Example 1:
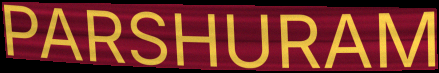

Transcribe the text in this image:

PARSHURAM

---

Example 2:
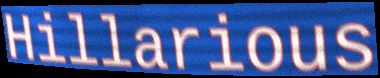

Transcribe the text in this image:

Hillarious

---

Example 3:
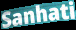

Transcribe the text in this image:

Sanhati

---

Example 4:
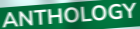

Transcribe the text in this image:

ANTHOLOGY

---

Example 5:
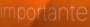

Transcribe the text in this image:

importante